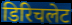
डिरिचलेट